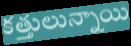
కత్తులున్నాయి